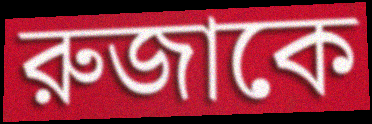
রুজাকে